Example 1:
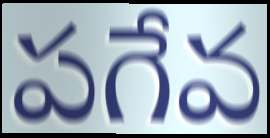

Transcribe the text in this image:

పగేవ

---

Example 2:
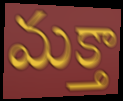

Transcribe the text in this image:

మక్తా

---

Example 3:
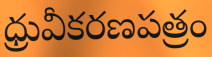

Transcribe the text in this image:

ధ్రువీకరణపత్రం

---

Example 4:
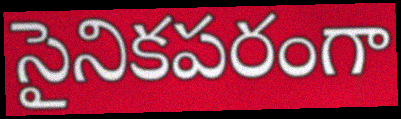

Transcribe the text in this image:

సైనికపరంగా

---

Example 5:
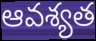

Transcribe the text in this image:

ఆవశ్యత